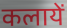
कलायें